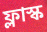
ফ্লাস্ক